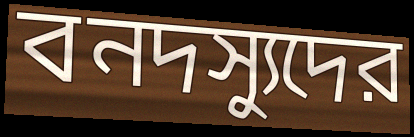
বনদস্যুদের